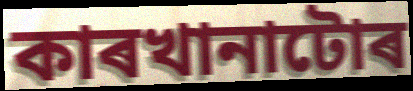
কাৰখানাটোৰ